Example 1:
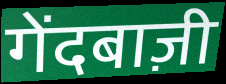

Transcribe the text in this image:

गेंदबाज़ी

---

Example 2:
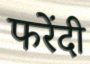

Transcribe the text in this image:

फरेंदी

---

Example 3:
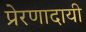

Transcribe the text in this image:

प्रेरणादायी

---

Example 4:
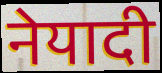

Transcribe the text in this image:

नेयादी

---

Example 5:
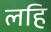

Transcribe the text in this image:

लहि